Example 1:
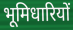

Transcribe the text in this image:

भूमिधारियों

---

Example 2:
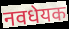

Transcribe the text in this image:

नवधेयक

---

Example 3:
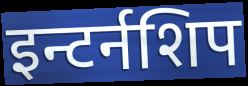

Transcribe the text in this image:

इन्टर्नशिप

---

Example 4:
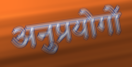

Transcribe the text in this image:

अनुप्रयोगों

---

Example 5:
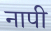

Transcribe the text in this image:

नापी